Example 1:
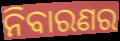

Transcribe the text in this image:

ନିବାରଣର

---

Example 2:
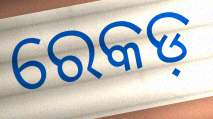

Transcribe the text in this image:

ରେକଡ଼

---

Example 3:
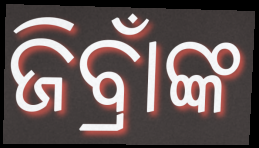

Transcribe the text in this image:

ଜିବ୍ରାଁଙ୍କ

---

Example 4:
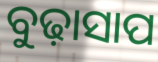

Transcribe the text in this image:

ବୁଢ଼ାସାପ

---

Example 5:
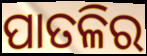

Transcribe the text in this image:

ପାତଳିର